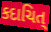
કદાચિત્